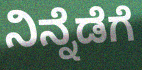
ನಿನ್ನೆಡೆಗೆ